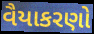
વૈયાકરણો